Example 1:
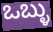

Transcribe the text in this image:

ಒಬ್ಳು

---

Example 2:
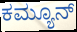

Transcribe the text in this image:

ಕಮ್ಯೂನ್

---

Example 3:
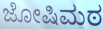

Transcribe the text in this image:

ಜೋಷಿಮಠ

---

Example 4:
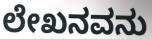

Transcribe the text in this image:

ಲೇಖನವನು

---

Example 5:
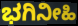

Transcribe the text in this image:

ಭಗಿನೀಹಿ